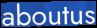
aboutus